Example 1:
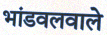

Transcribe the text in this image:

भांडवलवाले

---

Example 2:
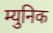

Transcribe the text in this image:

म्युनिक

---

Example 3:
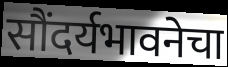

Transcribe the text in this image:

सौंदर्यभावनेचा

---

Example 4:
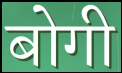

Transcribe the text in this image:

बोगी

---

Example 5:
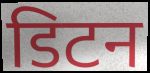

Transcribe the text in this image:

डिटन